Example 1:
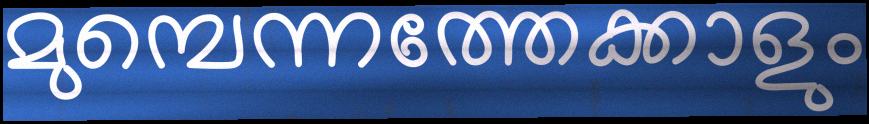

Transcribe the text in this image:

മുമ്പെന്നത്തേക്കാളും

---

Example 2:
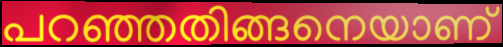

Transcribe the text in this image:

പറഞ്ഞതിങ്ങനെയാണ്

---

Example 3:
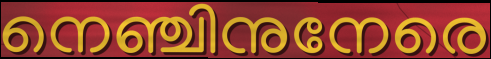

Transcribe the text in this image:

നെഞ്ചിനുനേരെ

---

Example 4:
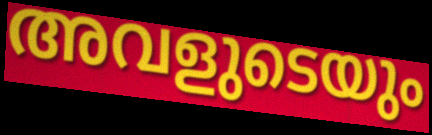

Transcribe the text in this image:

അവളുടെയും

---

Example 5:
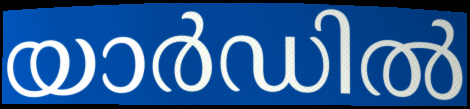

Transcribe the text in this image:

യാർഡിൽ